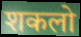
शकलो